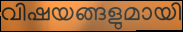
വിഷയങ്ങളുമായി